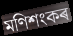
মণিশংকৰ